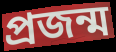
প্রজন্ম